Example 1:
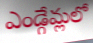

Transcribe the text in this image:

ఎండ్గేమ్లలో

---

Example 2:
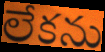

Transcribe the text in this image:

లేకను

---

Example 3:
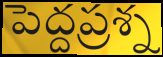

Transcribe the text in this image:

పెద్దప్రశ్న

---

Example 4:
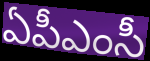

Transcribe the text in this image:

ఏపీఎంసీ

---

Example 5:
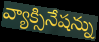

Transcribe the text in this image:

వ్యాక్సినేషన్ను